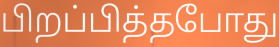
பிறப்பித்தபோது